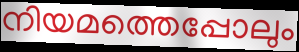
നിയമത്തെപ്പോലും